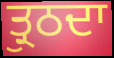
ਤ੍ਰੁਠਦਾ